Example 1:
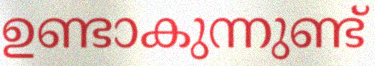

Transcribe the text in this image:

ഉണ്ടാകുന്നുണ്ട്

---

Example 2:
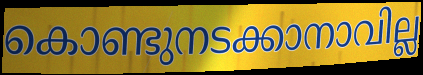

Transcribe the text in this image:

കൊണ്ടുനടക്കാനാവില്ല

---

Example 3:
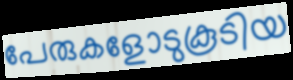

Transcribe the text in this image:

പേരുകളോടുകൂടിയ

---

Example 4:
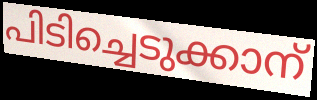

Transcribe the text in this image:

പിടിച്ചെടുക്കാന്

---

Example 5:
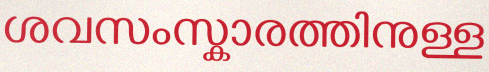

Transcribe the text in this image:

ശവസംസ്കാരത്തിനുള്ള